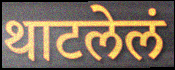
थाटलेलं